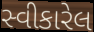
સ્વીકારેલ